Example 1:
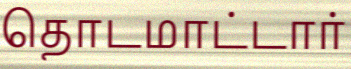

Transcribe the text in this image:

தொடமாட்டார்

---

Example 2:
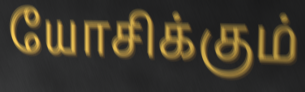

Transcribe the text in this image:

யோசிக்கும்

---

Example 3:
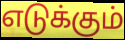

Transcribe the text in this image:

எடுக்கும்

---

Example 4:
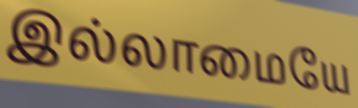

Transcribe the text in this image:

இல்லாமையே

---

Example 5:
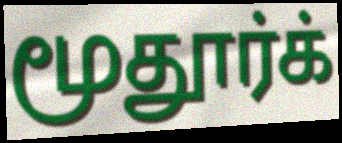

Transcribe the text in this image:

மூதூர்க்